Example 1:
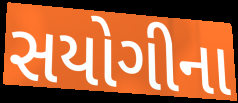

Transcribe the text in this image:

સયોગીના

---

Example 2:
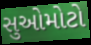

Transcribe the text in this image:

સુઓમોટો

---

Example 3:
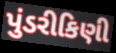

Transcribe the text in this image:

પુંડરીકિણી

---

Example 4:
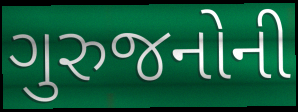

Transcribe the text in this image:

ગુરુજનોની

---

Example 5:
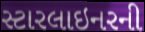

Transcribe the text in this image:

સ્ટારલાઇનરની